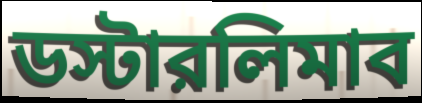
ডস্টারলিমাব